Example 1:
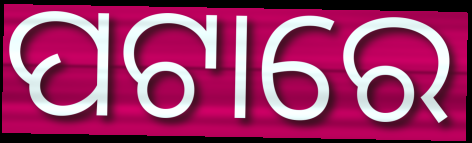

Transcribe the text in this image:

ପଟାରେ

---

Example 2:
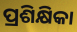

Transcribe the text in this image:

ପ୍ରଶିକ୍ଷିକା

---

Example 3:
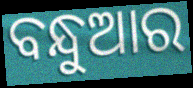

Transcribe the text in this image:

ବନ୍ଧୁଆର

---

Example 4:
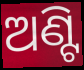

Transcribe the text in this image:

ଅଣ୍ଟି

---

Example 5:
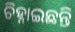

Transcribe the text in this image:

ଚିହ୍ନାଇଛନ୍ତି